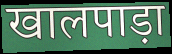
खालपाड़ा